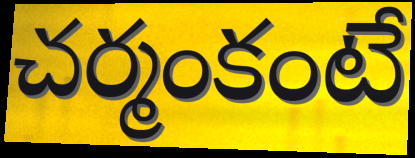
చర్మంకంటే